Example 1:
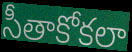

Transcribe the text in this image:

సీతాకోకలా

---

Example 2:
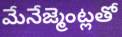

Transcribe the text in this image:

మేనేజ్మెంట్లతో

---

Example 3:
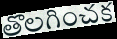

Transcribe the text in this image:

తొలగించక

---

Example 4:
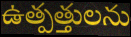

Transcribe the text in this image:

ఉత్పత్తులను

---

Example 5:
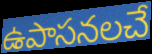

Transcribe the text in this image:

ఉపాసనలచే